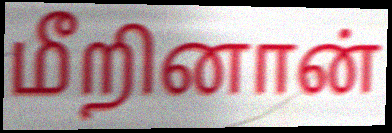
மீறினான்